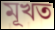
মূখত